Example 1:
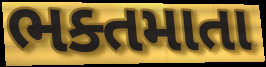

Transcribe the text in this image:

ભક્તમાતા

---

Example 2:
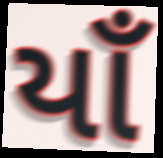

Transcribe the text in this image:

યાઁ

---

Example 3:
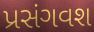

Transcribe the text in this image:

પ્રસંગવશ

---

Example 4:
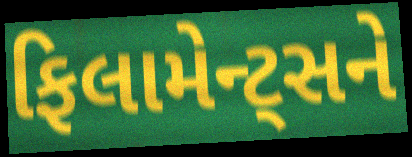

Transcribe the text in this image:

ફિલામેન્ટ્સને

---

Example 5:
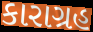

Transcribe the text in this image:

કારાગ્રહ